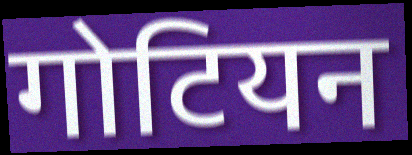
गोटियन